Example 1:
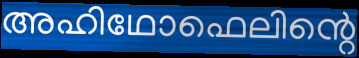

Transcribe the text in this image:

അഹിഥോഫെലിന്റെ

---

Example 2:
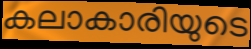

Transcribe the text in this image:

കലാകാരിയുടെ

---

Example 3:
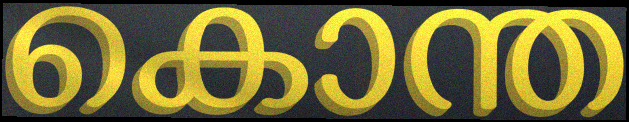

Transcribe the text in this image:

കൊന്ത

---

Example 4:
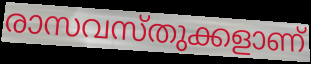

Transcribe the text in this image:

രാസവസ്തുക്കളാണ്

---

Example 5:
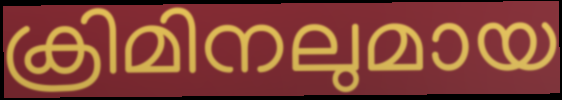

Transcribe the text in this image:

ക്രിമിനലുമായ